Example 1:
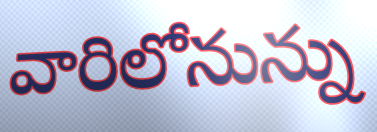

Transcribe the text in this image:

వారిలోనున్ను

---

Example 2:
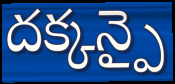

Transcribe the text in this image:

దక్కన్పై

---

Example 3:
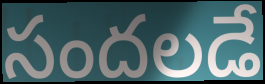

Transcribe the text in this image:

సందలడే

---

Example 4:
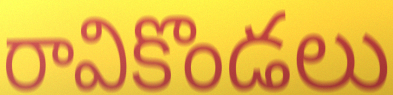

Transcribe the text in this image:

రావికొండలు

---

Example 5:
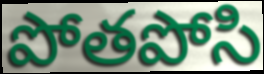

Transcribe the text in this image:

పోతపోసి